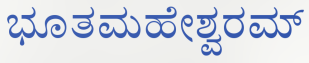
ಭೂತಮಹೇಶ್ವರಮ್